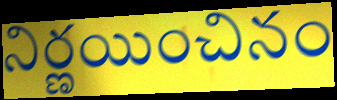
నిర్ణయించినం